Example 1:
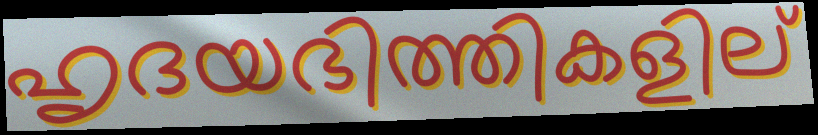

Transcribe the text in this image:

ഹൃദയഭിത്തികളില്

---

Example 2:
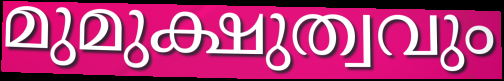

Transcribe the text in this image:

മുമുക്ഷുത്വവും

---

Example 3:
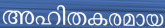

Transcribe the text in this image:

അഹിതകരമായ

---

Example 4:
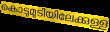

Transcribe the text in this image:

കൊടുമുടിയിലേക്കുള്ള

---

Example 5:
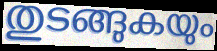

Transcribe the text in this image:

തുടങ്ങുകയും